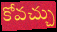
కోవచ్చు